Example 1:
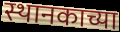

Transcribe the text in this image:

स्थानकाच्या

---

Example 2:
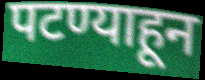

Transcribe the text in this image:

पटण्याहून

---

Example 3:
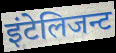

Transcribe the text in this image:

इंटेलिजन्ट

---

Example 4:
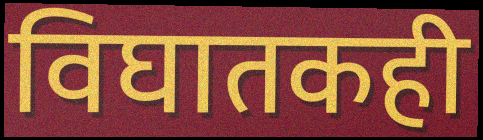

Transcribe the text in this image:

विघातकही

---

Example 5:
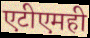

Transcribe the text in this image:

एटीएमही